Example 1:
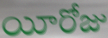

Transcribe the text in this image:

యీరోజు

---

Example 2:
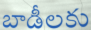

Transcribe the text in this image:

బాడీలకు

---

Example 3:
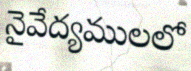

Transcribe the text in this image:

నైవేద్యములలో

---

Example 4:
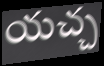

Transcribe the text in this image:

యచ్చ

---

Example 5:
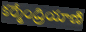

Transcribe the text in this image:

కర్మేంద్రియాణి